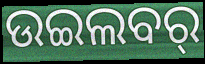
ଉଇଲବର୍